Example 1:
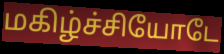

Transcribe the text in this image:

மகிழ்ச்சியோடே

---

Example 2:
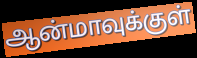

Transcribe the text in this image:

ஆன்மாவுக்குள்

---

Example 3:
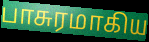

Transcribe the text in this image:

பாசுரமாகிய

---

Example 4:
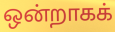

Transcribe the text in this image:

ஒன்றாகக்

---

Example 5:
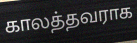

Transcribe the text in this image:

காலத்தவராக